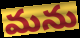
మను